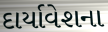
દાર્યાવેશના